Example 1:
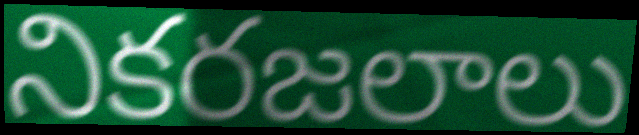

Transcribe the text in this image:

నికరజలాలు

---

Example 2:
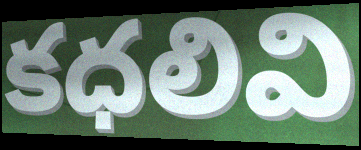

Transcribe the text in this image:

కధలివి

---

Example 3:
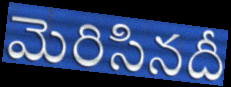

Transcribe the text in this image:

మెరిసినదీ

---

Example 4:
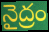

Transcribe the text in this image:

నైద్రం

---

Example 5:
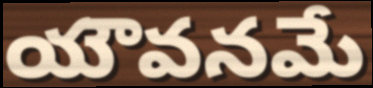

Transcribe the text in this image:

యౌవనమే